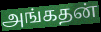
அங்கதன்